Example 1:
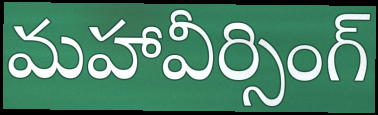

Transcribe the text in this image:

మహావీర్సింగ్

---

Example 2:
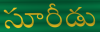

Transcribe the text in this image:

సూరీడు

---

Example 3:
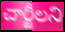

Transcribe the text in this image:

చార్జీలని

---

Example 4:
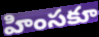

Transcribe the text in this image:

హింసకూ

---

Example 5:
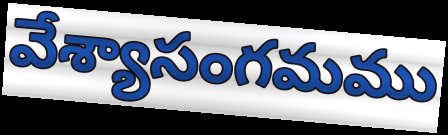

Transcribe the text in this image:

వేశ్యాసంగమము